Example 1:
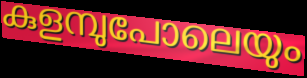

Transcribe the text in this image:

കുളമ്പുപോലെയും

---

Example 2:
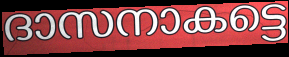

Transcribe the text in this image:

ദാസനാകട്ടെ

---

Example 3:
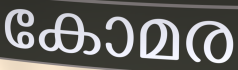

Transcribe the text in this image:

കോമര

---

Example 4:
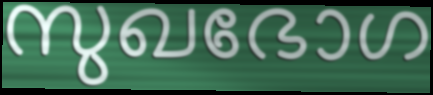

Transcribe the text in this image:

സുഖഭോഗ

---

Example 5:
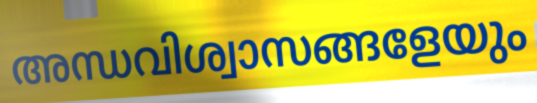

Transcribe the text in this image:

അന്ധവിശ്വാസങ്ങളേയും